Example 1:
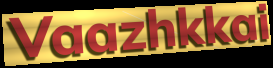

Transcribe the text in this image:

Vaazhkkai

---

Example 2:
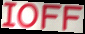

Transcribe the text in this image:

IOFF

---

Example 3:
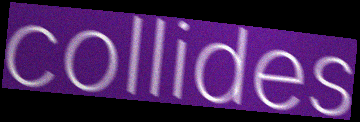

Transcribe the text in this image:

collides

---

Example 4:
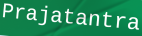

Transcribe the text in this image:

Prajatantra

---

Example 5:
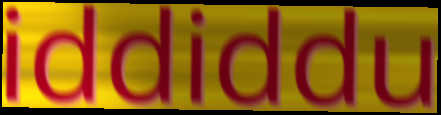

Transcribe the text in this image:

iddiddu